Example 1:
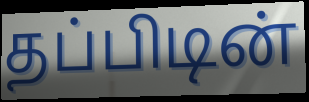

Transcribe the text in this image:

தப்பிடின்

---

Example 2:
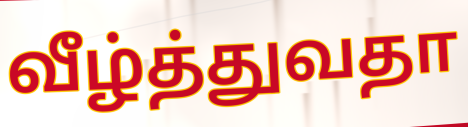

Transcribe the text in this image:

வீழ்த்துவதா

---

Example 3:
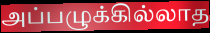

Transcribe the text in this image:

அப்பழுக்கில்லாத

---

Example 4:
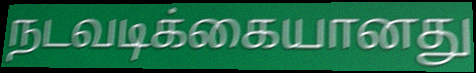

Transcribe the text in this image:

நடவடிக்கையானது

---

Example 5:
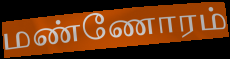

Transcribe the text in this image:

மண்ணோரம்